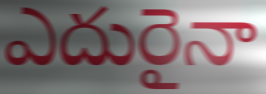
ఎదురైనా